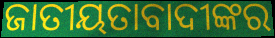
ଜାତୀୟତାବାଦୀଙ୍କର